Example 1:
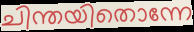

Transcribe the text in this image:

ചിന്തയിതൊന്നേ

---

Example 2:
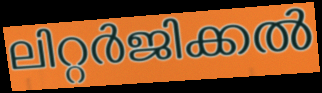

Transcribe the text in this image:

ലിറ്റർജിക്കൽ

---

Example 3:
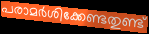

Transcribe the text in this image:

പരാമർശിക്കേണ്ടതുണ്ട്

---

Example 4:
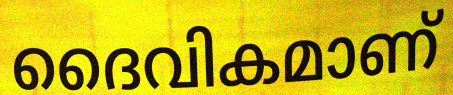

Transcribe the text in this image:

ദൈവികമാണ്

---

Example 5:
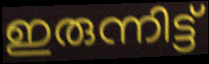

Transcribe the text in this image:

ഇരുന്നിട്ട്